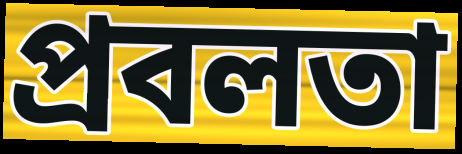
প্ৰবলতা